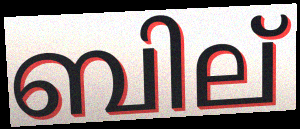
ബില്